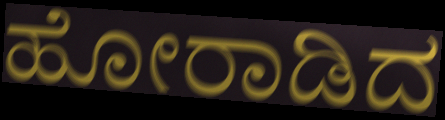
ಹೋರಾಡಿದ